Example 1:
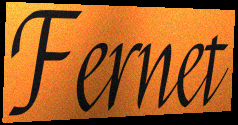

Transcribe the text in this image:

Fernet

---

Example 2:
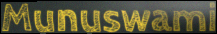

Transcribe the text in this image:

Munuswami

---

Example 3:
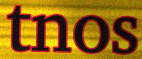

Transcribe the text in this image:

tnos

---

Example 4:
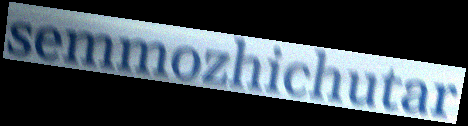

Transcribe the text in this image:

semmozhichutar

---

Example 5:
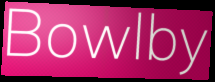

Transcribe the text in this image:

Bowlby